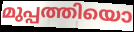
മുപ്പത്തിയൊ